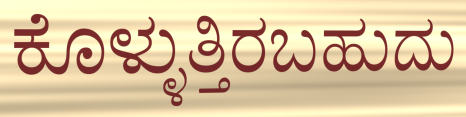
ಕೊಳ್ಳುತ್ತಿರಬಹುದು